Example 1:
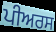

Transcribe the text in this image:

ਪੀਅਰਸ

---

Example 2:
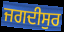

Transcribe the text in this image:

ਜਗਦੀਸੁਰ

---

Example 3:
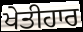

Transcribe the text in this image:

ਖੇਤੀਹਾਰ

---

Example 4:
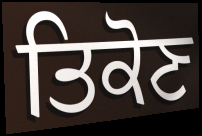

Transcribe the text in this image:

ਤਿਕੋਣ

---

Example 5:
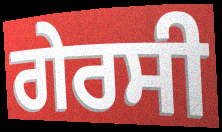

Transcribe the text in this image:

ਗੇਰਸੀ